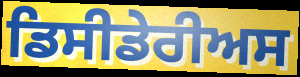
ਡਿਸੀਡੇਰੀਅਸ